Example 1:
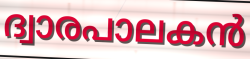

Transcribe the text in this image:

ദ്വാരപാലകൻ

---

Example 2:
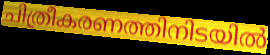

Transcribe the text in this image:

ചിത്രീകരണത്തിനിടയിൽ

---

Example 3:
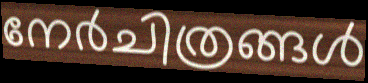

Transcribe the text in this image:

നേർചിത്രങ്ങൾ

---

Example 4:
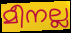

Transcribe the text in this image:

മീനല്ല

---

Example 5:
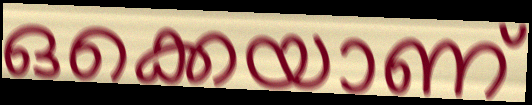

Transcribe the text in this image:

ഒക്കെയാണ്